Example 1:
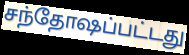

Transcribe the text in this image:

சந்தோஷப்பட்டது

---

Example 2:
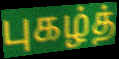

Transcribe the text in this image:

புகழ்த்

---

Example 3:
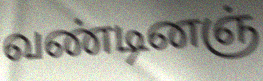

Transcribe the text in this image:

வண்டினஞ்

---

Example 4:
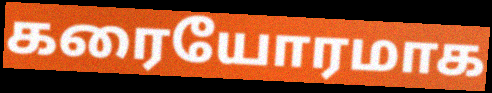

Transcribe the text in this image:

கரையோரமாக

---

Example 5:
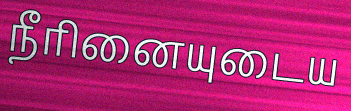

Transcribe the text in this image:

நீரினையுடைய